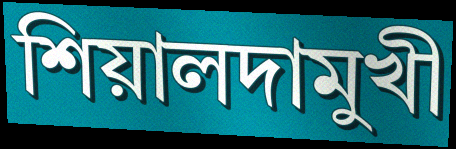
শিয়ালদামুখী